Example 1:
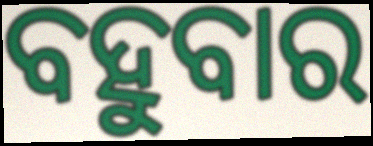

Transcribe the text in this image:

ବହୁବାର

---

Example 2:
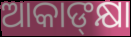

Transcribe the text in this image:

ଆକାଙ୍‌କ୍ଷା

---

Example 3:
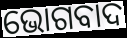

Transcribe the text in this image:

ଭୋଗବାଦ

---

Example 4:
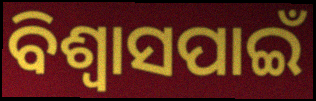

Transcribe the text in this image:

ବିଶ୍ୱାସପାଇଁ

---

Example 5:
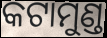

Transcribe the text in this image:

କଟାମୁଣ୍ଡ